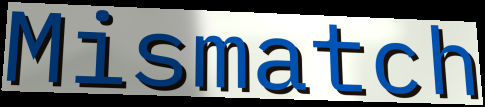
Mismatch